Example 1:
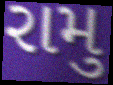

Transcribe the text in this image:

રામુ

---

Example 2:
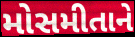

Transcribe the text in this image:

મોસમીતાને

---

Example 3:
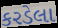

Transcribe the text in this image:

કરડેલા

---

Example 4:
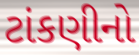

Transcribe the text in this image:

ટાંકણીનો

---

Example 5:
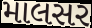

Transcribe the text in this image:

માલસર